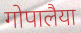
गोपालैया